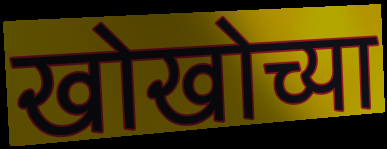
खोखोच्या